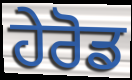
ਹੇਰੋਡ